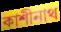
কাশীনাথ